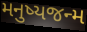
મનુષ્યજન્મ